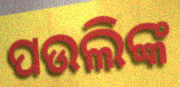
ପଉଲିଙ୍କ